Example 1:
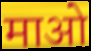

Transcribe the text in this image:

माओ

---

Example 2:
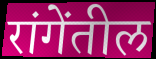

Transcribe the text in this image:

रांगेंतील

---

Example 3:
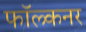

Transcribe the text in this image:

फॉल्कनर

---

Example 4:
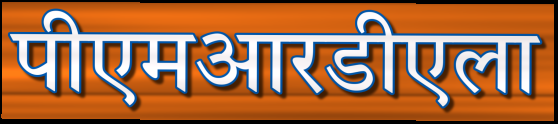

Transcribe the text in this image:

पीएमआरडीएला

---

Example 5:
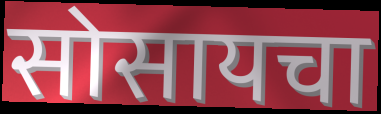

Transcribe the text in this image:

सोसायचा